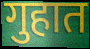
गुहात